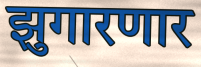
झुगारणार